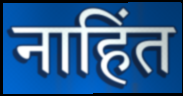
नाहिंत